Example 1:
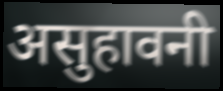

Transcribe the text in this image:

असुहावनी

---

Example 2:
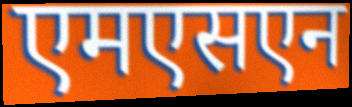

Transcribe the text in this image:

एमएसएन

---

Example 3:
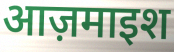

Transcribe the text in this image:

आज़माइश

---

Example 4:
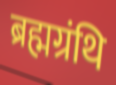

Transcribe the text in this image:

ब्रह्मग्रंथि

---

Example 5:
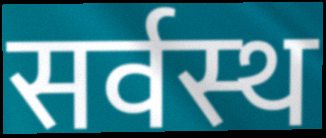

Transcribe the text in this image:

सर्वस्थ